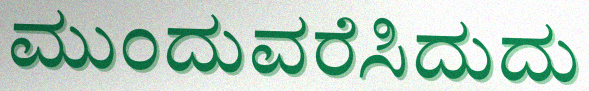
ಮುಂದುವರೆಸಿದುದು